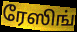
ரேஸிங்